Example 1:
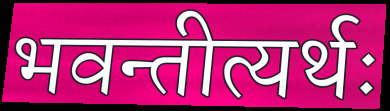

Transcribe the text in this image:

भवन्तीत्यर्थः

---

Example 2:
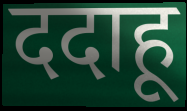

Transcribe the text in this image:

ददाहू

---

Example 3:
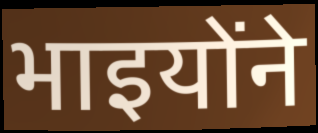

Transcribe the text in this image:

भाइयोंने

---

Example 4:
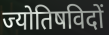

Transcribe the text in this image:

ज्योतिषविदों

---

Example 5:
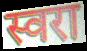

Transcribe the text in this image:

स्‍वरा